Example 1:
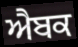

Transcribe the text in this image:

ਐਬਕ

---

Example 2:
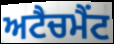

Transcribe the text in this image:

ਅਟੈਚਮੈਂਟ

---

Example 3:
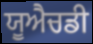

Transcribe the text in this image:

ਯੂਐਚਡੀ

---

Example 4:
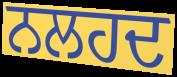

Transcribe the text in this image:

ਨਲਹਦ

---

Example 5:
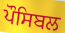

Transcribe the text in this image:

ਪੌਸਿਬਲ